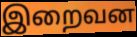
இறைவன